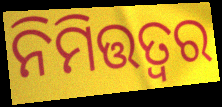
ନିମିତ୍ତତ୍ଵର